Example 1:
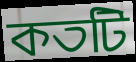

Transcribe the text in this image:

কতটি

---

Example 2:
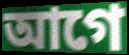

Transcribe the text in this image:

আগে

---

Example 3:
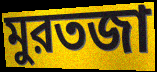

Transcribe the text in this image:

মুরতজা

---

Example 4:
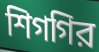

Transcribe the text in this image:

শিগগির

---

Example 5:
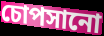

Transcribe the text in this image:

চোপসানো